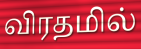
விரதமில்